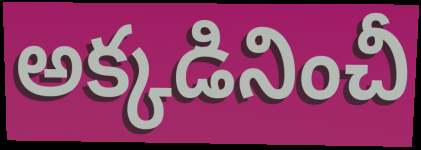
అక్కడినించీ